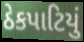
ઠેકપાટિયું